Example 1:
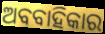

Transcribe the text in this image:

ଅବବାହିକାର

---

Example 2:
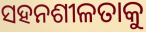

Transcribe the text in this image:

ସହନଶୀଳତାକୁ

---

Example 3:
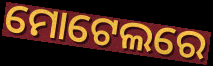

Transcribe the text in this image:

ମୋଟେଲରେ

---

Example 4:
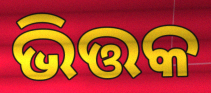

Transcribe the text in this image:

ଭିତ୍ତକ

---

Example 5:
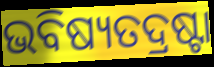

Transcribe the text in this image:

ଭବିଷ୍ୟତଦ୍ରଷ୍ଟା